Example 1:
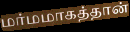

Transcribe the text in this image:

மர்மமாகத்தான்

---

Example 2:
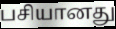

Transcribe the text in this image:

பசியானது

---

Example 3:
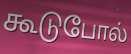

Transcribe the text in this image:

கூடுபோல்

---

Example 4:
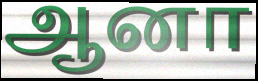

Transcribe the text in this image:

ஆனா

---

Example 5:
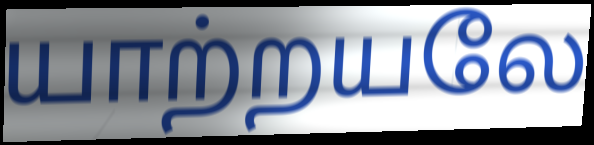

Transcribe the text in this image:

யாற்றயலே